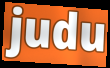
judu